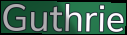
Guthrie